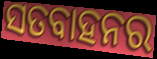
ସତବାହନର